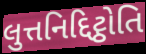
લુત્તનિદ્દિટ્ઠોતિ